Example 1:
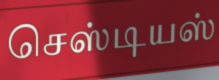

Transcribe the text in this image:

செஸ்டியஸ்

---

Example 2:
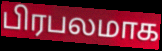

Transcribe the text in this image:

பிரபலமாக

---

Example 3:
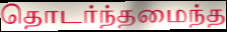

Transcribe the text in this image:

தொடர்ந்தமைந்த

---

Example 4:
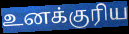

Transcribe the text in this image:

உனக்குரிய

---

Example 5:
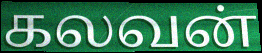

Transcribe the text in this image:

கலவன்